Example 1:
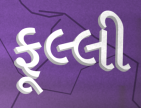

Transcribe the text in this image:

ફૂલ્લી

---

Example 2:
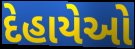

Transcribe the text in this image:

દેહાયેઓ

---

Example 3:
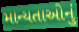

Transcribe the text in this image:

માન્યતાઓનું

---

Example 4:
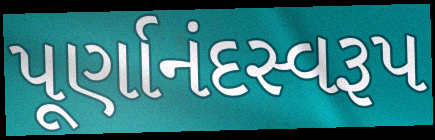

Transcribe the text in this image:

પૂર્ણાનંદસ્વરૂપ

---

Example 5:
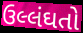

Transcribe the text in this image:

ઉલ્લંઘતો